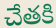
చేతకి